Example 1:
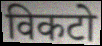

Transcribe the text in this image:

विकटो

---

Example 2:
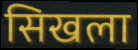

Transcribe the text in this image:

सिखला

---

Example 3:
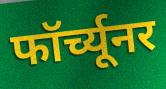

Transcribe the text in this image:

फॉर्च्यूनर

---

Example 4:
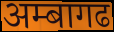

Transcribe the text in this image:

अम्बागढ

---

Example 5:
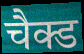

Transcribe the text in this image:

चैक्ड